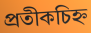
প্ৰতীকচিহ্ন